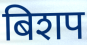
बिशप